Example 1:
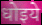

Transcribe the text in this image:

धोइये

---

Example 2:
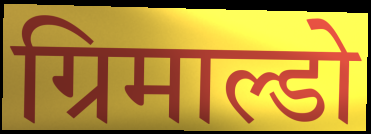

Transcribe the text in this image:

ग्रिमाल्डो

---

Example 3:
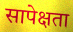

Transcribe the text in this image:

सापेक्षता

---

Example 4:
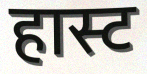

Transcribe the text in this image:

हास्ट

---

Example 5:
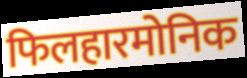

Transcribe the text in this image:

फिलहारमोनिक